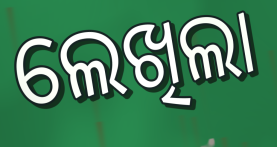
ଲେଖିଲା